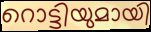
റൊട്ടിയുമായി